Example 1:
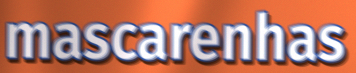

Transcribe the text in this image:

mascarenhas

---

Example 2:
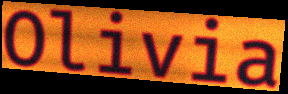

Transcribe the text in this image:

Olivia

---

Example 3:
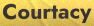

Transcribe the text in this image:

Courtacy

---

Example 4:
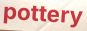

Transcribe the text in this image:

pottery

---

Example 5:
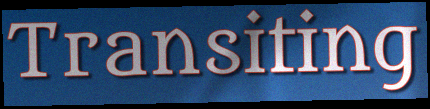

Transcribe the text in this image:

Transiting